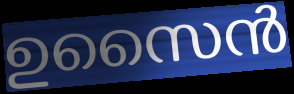
ഉസൈൻ